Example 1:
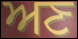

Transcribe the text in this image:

ਅਣ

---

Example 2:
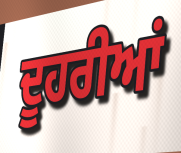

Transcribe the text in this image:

ਦੂਹਰੀਆਂ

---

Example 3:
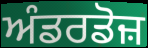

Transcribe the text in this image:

ਅੰਡਰਡੋਜ਼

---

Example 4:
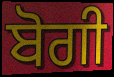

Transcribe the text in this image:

ਬੋਗੀ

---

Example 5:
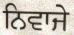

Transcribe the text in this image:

ਨਿਵਾਜੇ